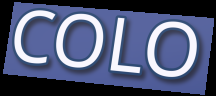
COLO